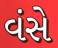
વંસે